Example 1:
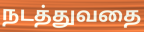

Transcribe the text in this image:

நடத்துவதை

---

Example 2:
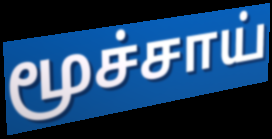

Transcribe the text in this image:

மூச்சாய்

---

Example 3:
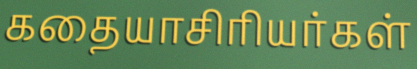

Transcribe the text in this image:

கதையாசிரியர்கள்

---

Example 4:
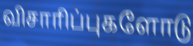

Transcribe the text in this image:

விசாரிப்புகளோடு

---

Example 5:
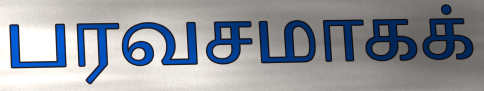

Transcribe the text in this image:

பரவசமாகக்